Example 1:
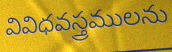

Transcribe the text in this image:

వివిధవస్త్రములను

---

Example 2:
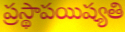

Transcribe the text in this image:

ప్రస్థాపయిష్యతి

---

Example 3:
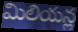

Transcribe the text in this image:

మిలియన్ల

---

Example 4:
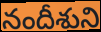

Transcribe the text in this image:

నందీశుని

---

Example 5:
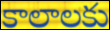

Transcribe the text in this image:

కాలాలకు